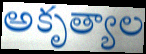
అకృత్యాల